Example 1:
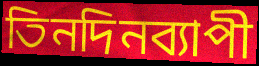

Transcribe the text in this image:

তিনদিনব্যাপী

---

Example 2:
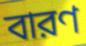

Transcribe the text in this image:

বারণ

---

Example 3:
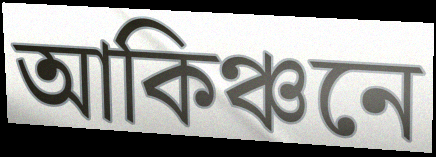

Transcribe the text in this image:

আকিঞ্চনে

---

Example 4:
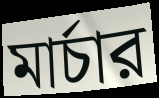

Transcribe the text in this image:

মার্চার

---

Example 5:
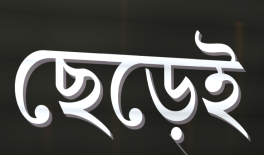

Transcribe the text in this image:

ছেড়েই